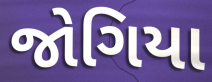
જોગિયા